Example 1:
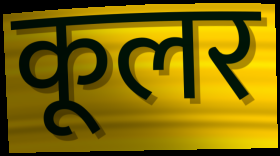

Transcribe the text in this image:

कूलर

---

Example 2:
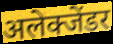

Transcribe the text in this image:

अलेक्जेंडर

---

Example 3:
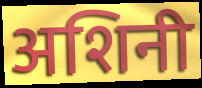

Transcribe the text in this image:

अशिनी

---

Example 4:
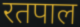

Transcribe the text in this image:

रतपाल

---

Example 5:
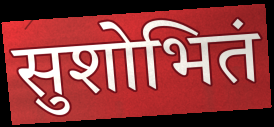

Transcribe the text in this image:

सुशोभितं